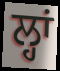
ਲ੍ਹਾਂ